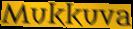
Mukkuva